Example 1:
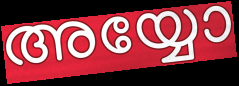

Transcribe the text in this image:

അയ്യോ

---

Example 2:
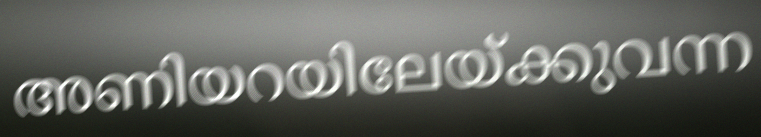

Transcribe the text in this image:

അണിയറയിലേയ്ക്കുവന്ന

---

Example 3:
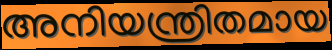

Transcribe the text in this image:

അനിയന്ത്രിതമായ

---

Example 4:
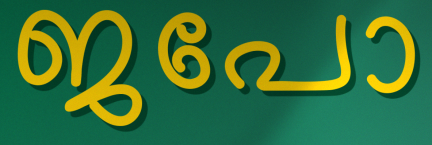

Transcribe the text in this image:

ജപോ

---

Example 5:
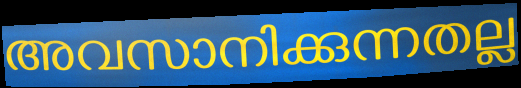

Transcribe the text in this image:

അവസാനിക്കുന്നതല്ല